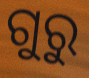
ଗୁରୁ